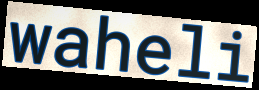
waheli